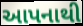
આપનાથી